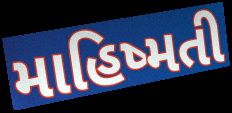
માહિષ્મતી